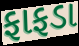
ફાફડા